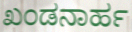
ಖಂಡನಾರ್ಹ